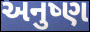
અનુષ્ણ